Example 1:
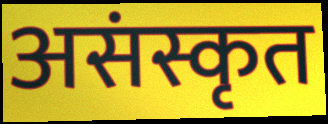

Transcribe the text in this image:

असंस्कृत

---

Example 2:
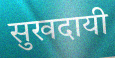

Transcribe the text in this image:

सुखदायी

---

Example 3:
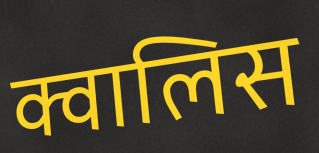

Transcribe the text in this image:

क्वालिस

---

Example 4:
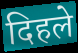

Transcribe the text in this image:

दिहले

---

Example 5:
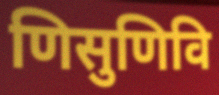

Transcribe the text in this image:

णिसुणिवि